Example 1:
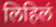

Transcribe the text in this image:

लिहिलं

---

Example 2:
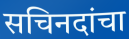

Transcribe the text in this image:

सचिनदांचा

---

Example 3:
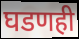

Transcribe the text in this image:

घडणही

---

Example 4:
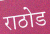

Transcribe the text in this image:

राठोड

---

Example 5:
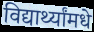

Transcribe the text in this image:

विद्यार्थ्यांमधे